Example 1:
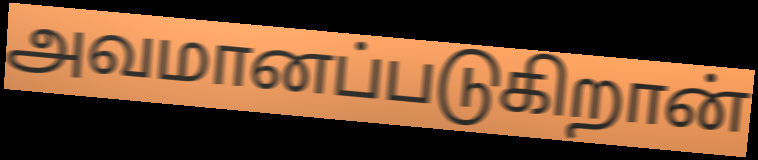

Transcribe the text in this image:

அவமானப்படுகிறான்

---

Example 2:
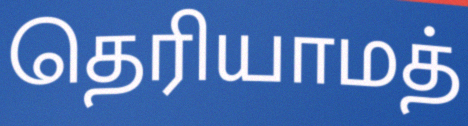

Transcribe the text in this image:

தெரியாமத்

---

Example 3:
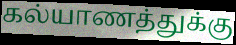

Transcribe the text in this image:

கல்யாணத்துக்கு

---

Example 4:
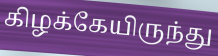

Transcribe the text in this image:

கிழக்கேயிருந்து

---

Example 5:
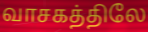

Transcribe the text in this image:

வாசகத்திலே